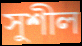
সুশীল